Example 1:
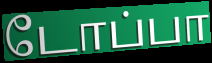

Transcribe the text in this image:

டோப்பா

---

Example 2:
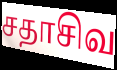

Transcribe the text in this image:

சதாசிவ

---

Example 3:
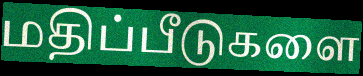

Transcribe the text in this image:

மதிப்பீடுகளை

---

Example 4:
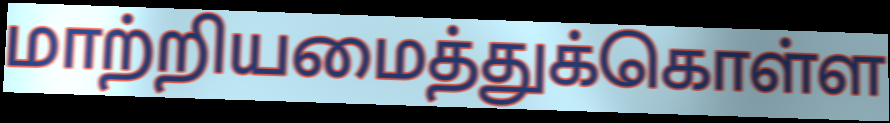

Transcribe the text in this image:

மாற்றியமைத்துக்கொள்ள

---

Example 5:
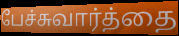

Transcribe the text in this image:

பேச்சுவார்த்தை